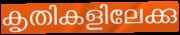
കൃതികളിലേക്കു